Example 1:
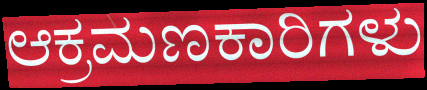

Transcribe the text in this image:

ಆಕ್ರಮಣಕಾರಿಗಳು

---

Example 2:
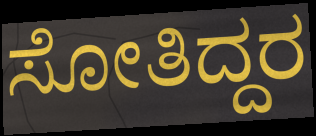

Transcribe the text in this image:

ಸೋತಿದ್ದರ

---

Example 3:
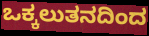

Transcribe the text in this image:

ಒಕ್ಕಲುತನದಿಂದ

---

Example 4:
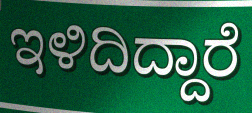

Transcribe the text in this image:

ಇಳಿದಿದ್ದಾರೆ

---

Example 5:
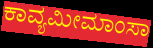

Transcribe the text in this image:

ಕಾವ್ಯಮೀಮಾಂಸಾ